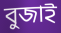
বুজাই